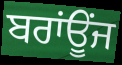
ਬਰਾਂਊਂਜ